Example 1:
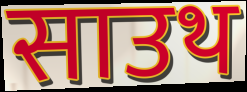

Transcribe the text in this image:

साउथ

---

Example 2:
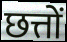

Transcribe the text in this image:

छत्तों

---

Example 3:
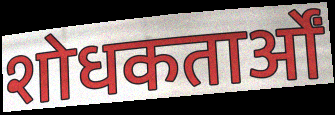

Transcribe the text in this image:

शोधकतार्ओं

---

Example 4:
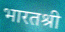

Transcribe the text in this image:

भारतश्री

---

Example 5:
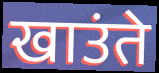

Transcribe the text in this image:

खाउंते